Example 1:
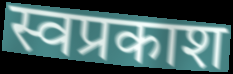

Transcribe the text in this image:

स्वप्रकाश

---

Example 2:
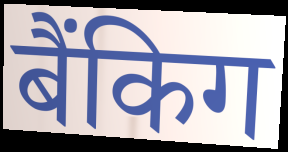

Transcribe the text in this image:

बैंकिग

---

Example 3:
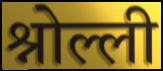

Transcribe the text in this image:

श्नोल्ली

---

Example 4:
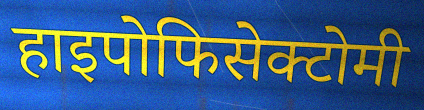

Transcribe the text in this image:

हाइपोफिसेक्टोमी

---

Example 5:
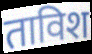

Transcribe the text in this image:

ताविश